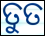
ତୁତ